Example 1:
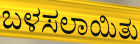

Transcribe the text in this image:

ಬಳಸಲಾಯಿತು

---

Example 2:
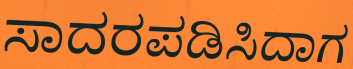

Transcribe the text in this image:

ಸಾದರಪಡಿಸಿದಾಗ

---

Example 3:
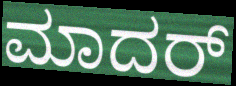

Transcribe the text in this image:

ಮಾದರ್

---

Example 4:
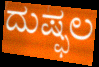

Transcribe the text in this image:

ದುಷ್ಫಲ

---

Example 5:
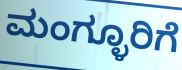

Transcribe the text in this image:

ಮಂಗ್ಳೂರಿಗೆ